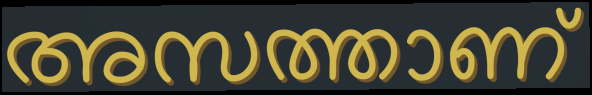
അസത്താണ്